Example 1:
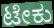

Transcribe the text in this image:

ಟೇಕು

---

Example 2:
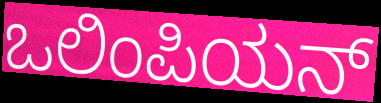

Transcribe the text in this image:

ಒಲಿಂಪಿಯನ್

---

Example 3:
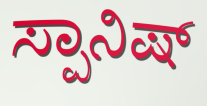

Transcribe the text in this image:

ಸ್ಪಾನಿಷ್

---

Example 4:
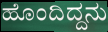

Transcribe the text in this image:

ಹೊಂದಿದ್ದನು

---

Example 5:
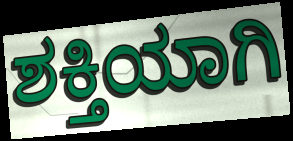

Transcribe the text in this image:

ಶಕ್ತಿಯಾಗಿ